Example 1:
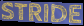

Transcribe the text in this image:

STRIDE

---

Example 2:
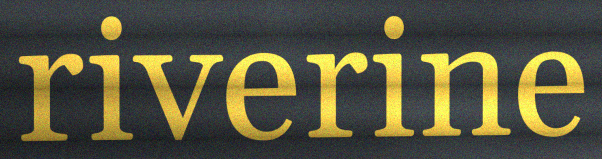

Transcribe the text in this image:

riverine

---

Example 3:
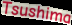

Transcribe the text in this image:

Tsushima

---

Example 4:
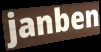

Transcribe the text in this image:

janben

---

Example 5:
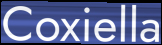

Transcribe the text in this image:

Coxiella